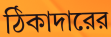
ঠিকাদারের